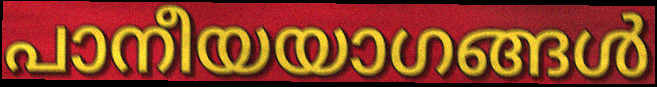
പാനീയയാഗങ്ങൾ